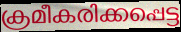
ക്രമീകരിക്കപ്പെട്ട